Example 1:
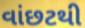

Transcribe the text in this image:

વાંછટથી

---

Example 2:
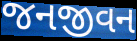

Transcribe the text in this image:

જનજીવન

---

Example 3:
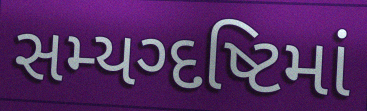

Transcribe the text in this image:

સમ્યગ્દષ્ટિમાં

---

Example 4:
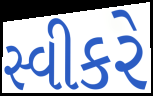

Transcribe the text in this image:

સ્વીકરે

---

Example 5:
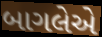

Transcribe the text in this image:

બાગલેએ